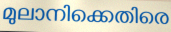
മുലാനിക്കെതിരെ